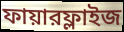
ফায়ারফ্লাইজ